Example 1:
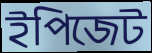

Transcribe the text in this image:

ইপিজেট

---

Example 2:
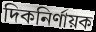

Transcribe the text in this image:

দিকনির্ণায়ক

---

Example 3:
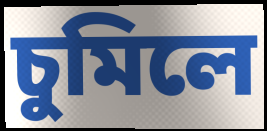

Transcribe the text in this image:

চুমিলে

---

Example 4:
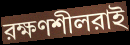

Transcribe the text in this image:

রক্ষণশীলরাই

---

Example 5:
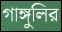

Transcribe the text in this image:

গাঙ্গুলির